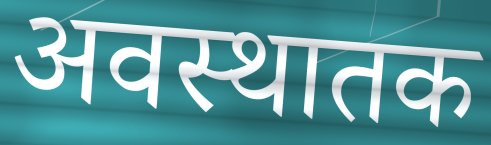
अवस्थातक